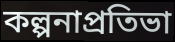
কল্পনাপ্রতিভা